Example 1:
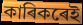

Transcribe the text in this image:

কাৰিকৰেই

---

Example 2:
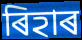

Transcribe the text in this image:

ৰিহাৰ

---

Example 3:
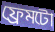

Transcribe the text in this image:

ফ্ৰেমটো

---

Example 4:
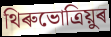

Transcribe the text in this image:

থিৰুভোত্ৰিয়ুৰ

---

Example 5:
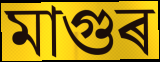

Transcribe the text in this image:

মাগুৰ